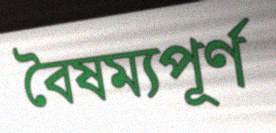
বৈষম্যপূর্ণ